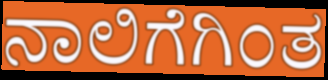
ನಾಲಿಗೆಗಿಂತ